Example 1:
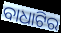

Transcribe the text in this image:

ବାଧାଟିର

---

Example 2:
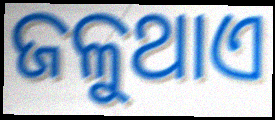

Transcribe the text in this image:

ଜଳୁଥାଏ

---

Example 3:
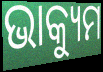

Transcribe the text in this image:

ଭାକ୍ୟୁମ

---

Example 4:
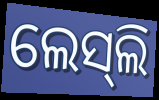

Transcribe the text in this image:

ଲେସ୍‍ଲି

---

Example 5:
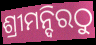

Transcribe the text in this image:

ଶ୍ରୀମନ୍ଦିରଠୁ